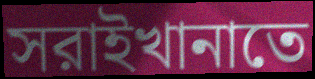
সরাইখানাতে